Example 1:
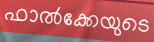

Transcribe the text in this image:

ഫാൽക്കേയുടെ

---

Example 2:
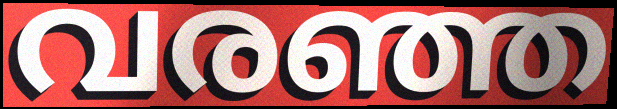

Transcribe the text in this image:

വരഞ്ഞ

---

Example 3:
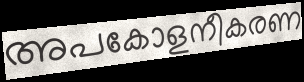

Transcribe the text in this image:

അപകോളനീകരണ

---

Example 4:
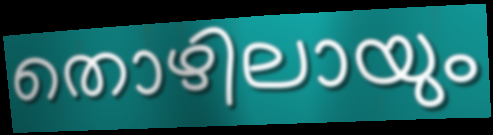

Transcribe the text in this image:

തൊഴിലായും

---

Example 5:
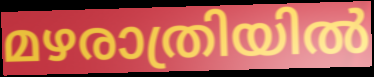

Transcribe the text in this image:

മഴരാത്രിയിൽ